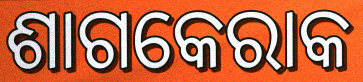
ଶାଗକେରାକ